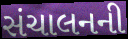
સંચાલનની